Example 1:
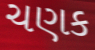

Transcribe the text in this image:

ચણક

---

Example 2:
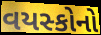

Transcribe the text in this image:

વયસ્કોનો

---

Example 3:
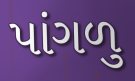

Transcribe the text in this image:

પાંગળુ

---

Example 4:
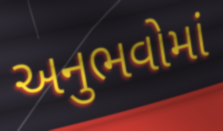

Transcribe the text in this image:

અનુભવોમાં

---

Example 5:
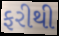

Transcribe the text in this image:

ફરીથી